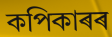
কপিকাৰৰ